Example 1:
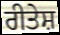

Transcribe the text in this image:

ਰੀਤੇਸ਼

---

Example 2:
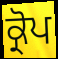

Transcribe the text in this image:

ਕ੍ਰੋਪ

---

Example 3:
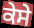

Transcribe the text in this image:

ਕੇਸੇ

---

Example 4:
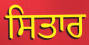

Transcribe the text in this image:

ਸਿਤਾਰ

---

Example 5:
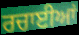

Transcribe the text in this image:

ਰਚਾਈਆਂ